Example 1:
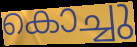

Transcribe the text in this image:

കൊച്ചു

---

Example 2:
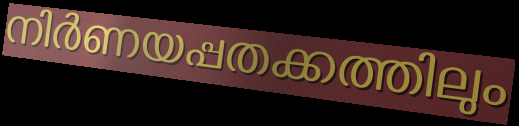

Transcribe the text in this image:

നിർണയപ്പതക്കത്തിലും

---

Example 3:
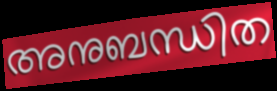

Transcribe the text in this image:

അനുബന്ധിത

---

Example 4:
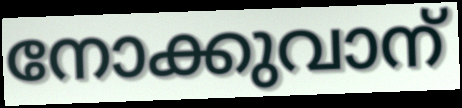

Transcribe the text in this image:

നോക്കുവാന്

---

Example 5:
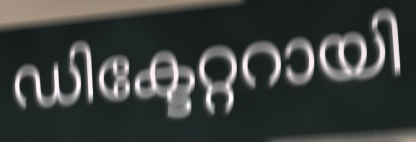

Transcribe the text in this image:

ഡിക്ടേറ്ററായി